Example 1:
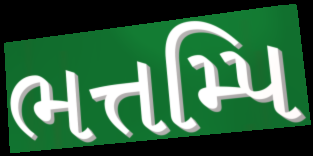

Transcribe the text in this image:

ભત્તમ્પિ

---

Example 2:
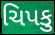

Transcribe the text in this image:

ચિપકુ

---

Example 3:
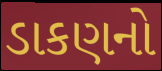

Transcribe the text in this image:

ડાકણનો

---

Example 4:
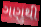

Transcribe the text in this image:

ગણુથી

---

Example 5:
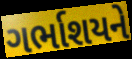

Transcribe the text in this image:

ગર્ભાશયને